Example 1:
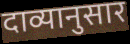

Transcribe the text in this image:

दाव्यानुसार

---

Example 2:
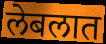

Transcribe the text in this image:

लेबलात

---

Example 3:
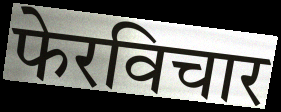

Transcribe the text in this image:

फेरविचार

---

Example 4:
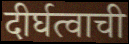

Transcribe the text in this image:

दीर्घत्वाची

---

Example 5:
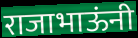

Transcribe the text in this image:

राजाभाऊंनी